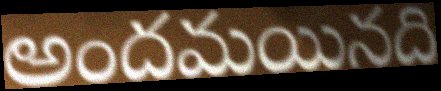
అందమయినది